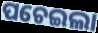
ପଚେଇଲା